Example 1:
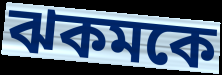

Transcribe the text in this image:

ঝকমকে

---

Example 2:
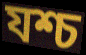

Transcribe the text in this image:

যশ্চ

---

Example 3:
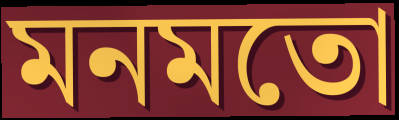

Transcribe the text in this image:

মনমতো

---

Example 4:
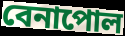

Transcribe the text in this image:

বেনাপোল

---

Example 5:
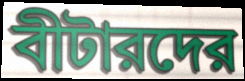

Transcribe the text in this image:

বীটারদের